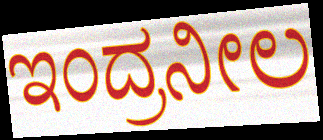
ಇಂದ್ರನೀಲ